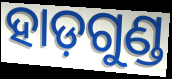
ହାଡ଼ଗୁଣ୍ଡ